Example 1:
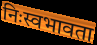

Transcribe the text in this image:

निःस्वभावता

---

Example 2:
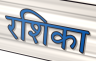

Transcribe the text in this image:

रशिका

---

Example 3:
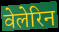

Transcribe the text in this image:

वेलेरिन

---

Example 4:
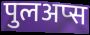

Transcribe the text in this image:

पुलअप्स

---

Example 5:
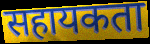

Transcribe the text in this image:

सहायकता